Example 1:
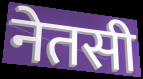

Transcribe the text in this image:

नेतसी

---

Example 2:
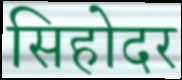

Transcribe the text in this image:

सिहोदर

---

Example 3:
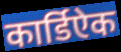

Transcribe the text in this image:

कार्डिऐक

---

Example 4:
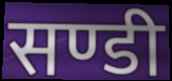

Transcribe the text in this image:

सण्डी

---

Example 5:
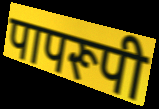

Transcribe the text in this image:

पापरूपी